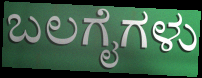
ಬಲಗೈಗಳು